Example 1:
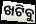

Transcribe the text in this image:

ଖଟିବୁ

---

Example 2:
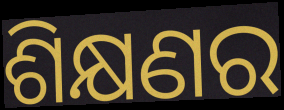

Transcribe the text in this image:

ଶିକ୍ଷଣର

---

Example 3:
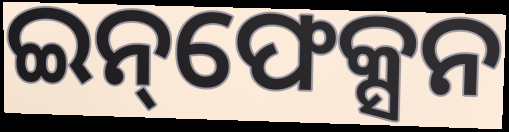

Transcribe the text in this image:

ଇନ୍‌ଫେକ୍ସନ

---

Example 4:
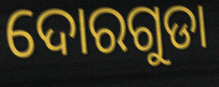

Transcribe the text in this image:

ଦୋରଗୁଡା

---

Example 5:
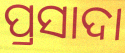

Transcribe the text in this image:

ପ୍ରସାଦା